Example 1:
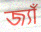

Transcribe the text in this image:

জ্যাঁ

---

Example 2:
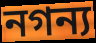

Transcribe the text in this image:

নগন্য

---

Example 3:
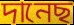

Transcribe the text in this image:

দানেছ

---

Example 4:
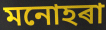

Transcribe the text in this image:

মনোহৰা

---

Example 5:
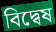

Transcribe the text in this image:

বিদ্বেষ